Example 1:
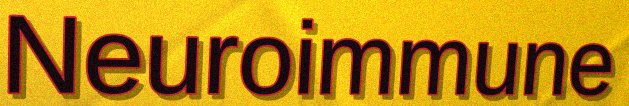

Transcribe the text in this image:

Neuroimmune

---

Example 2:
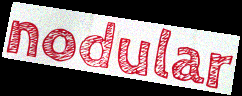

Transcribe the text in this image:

nodular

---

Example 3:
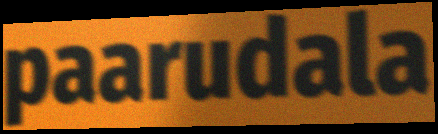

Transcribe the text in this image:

paarudala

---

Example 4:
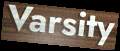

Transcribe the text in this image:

Varsity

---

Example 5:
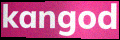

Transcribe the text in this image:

kangod